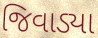
જિવાડ્યા